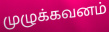
முழுக்கவனம்